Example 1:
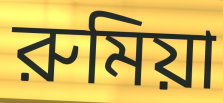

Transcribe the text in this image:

রুমিয়া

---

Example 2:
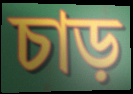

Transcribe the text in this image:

চাড়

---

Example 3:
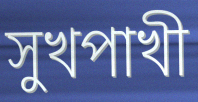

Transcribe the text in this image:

সুখপাখী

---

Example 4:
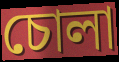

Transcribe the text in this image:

চোলা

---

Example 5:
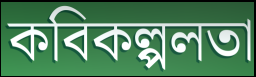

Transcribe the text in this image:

কবিকল্পলতা